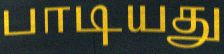
பாடியது